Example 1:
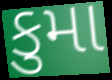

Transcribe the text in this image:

કુમા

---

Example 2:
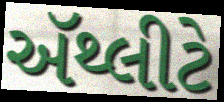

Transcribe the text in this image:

ઍથ્લીટે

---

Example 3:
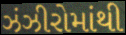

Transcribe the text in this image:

ઝંઝીરોમાંથી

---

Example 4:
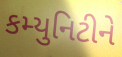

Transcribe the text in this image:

કમ્યુનિટીને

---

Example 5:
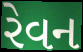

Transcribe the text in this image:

રેવન